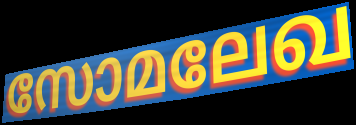
സോമലേഖ